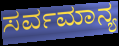
ಸರ್ವಮಾನ್ಯ